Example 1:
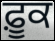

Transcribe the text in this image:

ਫ਼ੂਕ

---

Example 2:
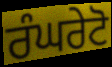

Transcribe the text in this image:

ਰੰਘਰੇਟੋ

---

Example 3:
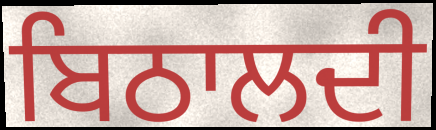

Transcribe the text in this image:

ਬਿਠਾਲਦੀ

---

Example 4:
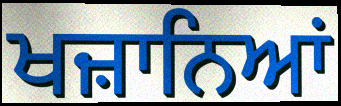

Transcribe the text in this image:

ਖਜ਼ਾਨਿਆਂ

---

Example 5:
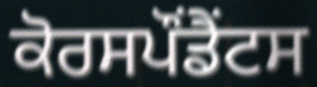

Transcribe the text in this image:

ਕੋਰਸਪੌਂਡੈਂਟਸ